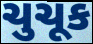
ચુચૂક